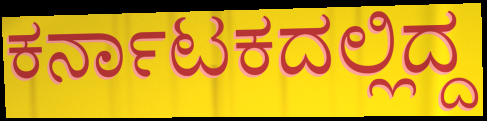
ಕರ್ನಾಟಕದಲ್ಲಿದ್ದ